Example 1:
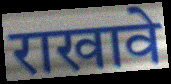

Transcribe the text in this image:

राखावे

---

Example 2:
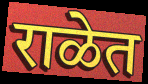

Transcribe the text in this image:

राळेत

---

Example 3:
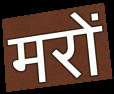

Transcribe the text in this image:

मरों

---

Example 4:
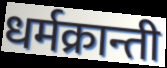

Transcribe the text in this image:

धर्मक्रान्ती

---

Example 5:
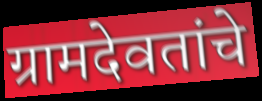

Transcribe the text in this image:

ग्रामदेवतांचे